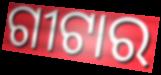
ଗୀଟାର